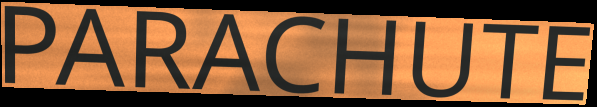
PARACHUTE